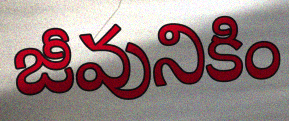
జీవునికిం